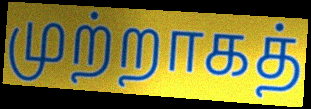
முற்றாகத்